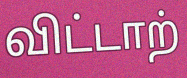
விட்டாற்